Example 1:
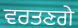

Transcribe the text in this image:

ਵਰਤਣਗੇ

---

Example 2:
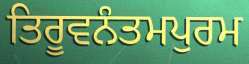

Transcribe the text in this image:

ਤਿਰੂਵਨੰਤਮਪੁਰਮ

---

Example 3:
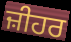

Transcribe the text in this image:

ਜ਼ੀਹਰ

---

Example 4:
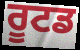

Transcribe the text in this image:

ਰੂਟਡ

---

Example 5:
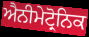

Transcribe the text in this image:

ਐਨੀਮੇਟ੍ਰੋਨਿਕ